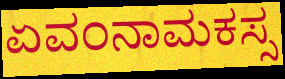
ಏವಂನಾಮಕಸ್ಸ